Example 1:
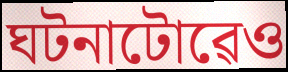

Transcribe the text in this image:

ঘটনাটোৱেও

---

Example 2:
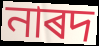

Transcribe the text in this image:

নাৰদ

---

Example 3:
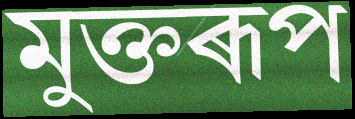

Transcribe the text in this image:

মুক্তৰূপ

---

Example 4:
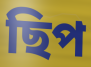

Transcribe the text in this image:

ছিপ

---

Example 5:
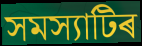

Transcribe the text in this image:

সমস্যাটিৰ